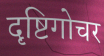
दृष्टिगोचर